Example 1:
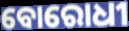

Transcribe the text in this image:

ବୋରୋଧୀ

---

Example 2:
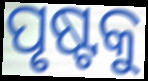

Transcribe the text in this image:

ପୃଷ୍ଟକୁ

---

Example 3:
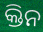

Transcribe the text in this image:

କ୍ତିନ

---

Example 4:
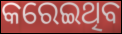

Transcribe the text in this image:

କରେଇଥିବ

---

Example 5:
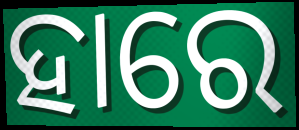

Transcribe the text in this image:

ହାରେ